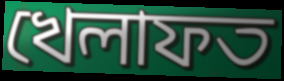
খেলাফত